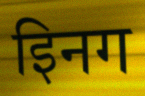
इिनग